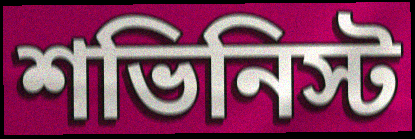
শভিনিস্ট